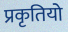
प्रकृतियो